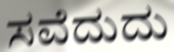
ಸವೆದುದು